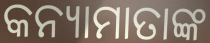
କନ୍ୟାମାତାଙ୍କ